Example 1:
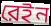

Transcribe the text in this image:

রেইন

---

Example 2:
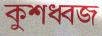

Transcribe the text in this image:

কুশধ্বজ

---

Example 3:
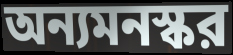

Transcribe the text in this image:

অন্যমনস্কর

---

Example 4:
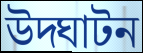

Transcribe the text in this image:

উদ্ঘাটন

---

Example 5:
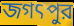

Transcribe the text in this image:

জগৎপুর